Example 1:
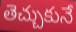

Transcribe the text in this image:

తెచ్చుకునే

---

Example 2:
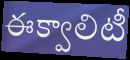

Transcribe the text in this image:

ఈక్వాలిటీ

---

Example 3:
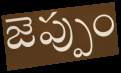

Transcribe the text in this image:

జెప్పుం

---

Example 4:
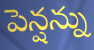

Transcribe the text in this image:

పెన్షన్ను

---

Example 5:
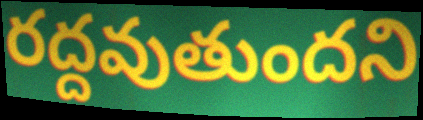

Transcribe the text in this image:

రద్దవుతుందని